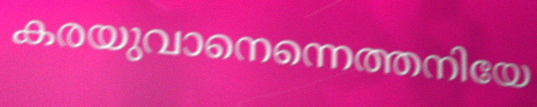
കരയുവാനെന്നെത്തനിയേ